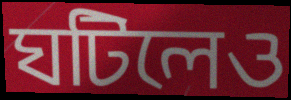
ঘটিলেও